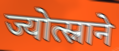
ज्योत्स्नाने